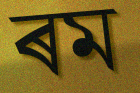
ৰম